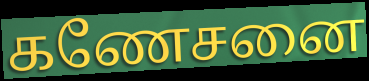
கணேசனை